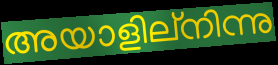
അയാളില്നിന്നു